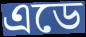
এডে